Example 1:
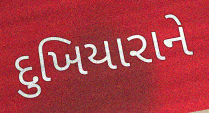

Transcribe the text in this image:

દુખિયારાને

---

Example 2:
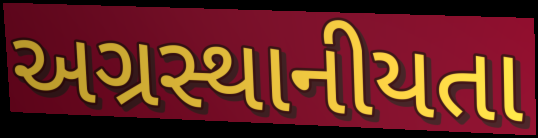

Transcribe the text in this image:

અગ્રસ્થાનીયતા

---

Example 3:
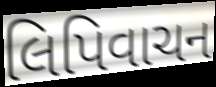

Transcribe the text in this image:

લિપિવાચન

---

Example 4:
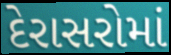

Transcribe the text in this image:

દેરાસરોમાં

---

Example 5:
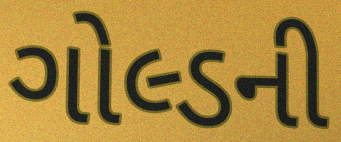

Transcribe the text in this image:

ગોલ્ડની